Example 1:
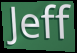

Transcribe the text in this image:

Jeff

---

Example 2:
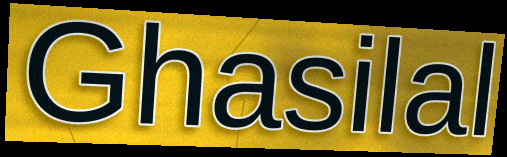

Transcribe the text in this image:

Ghasilal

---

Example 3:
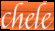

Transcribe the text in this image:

chele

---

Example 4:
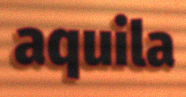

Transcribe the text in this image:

aquila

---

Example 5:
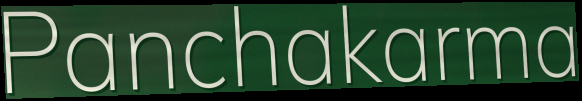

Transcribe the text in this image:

Panchakarma